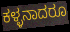
ಕಳ್ಳನಾದರೂ